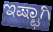
ಇಷ್ಟಾಗಿ